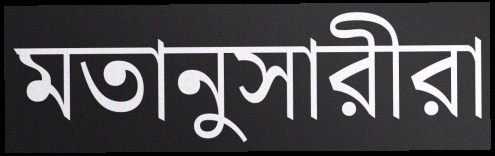
মতানুসারীরা